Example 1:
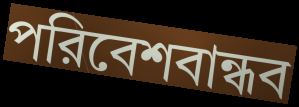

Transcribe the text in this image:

পরিবেশবান্ধব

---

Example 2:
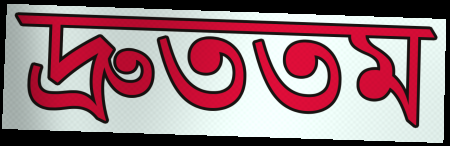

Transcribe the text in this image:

দ্রুততম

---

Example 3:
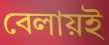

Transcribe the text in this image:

বেলায়ই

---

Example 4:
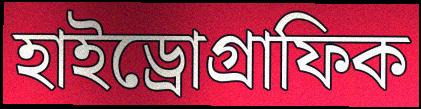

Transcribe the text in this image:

হাইড্রোগ্রাফিক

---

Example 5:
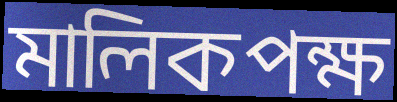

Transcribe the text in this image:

মালিকপক্ষ